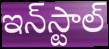
ఇన్‌స్టాల్